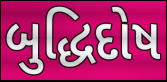
બુદ્ધિદોષ